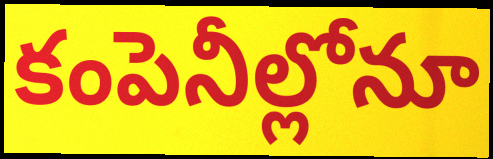
కంపెనీల్లోనూ